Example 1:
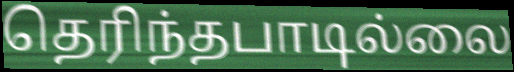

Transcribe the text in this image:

தெரிந்தபாடில்லை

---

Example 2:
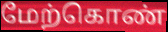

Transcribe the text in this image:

மேற்கொண்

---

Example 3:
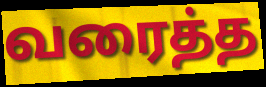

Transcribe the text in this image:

வரைத்த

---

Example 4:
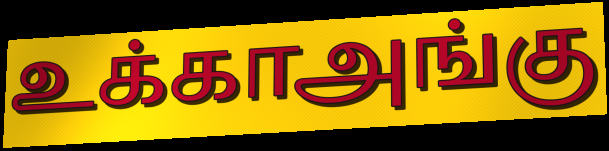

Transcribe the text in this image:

உக்காஅங்கு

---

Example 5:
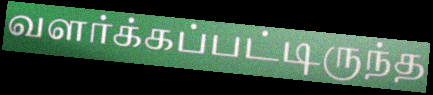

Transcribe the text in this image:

வளர்க்கப்பட்டிருந்த